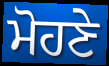
ਮੋਹਣੇ